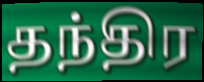
தந்திர